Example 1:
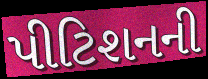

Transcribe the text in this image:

પીટિશનની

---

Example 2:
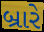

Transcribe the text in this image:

બ્રારે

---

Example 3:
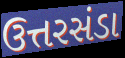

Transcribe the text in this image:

ઉત્તરસંડા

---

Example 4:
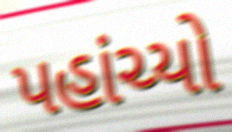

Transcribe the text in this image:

પહાંચ્યો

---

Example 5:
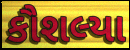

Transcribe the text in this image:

કૌશલ્યા